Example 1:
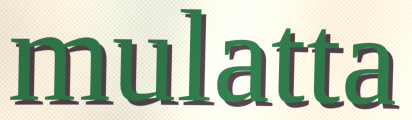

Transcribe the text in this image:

mulatta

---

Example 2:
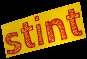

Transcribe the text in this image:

stint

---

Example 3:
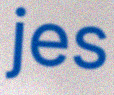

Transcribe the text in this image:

jes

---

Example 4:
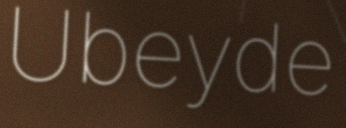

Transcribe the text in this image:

Ubeyde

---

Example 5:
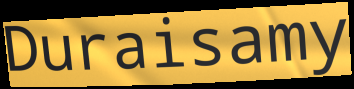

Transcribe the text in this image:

Duraisamy